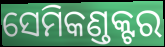
ସେମିକଣ୍ଡକ୍ଟର